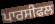
ਪਾਰਸੀਫਲ